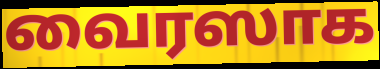
வைரஸாக